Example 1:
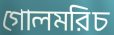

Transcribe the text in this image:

গোলমরিচ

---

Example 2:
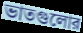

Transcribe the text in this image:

ভাতগুলোর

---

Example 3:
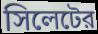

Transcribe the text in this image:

সিলেটের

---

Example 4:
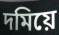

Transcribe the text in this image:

দমিয়ে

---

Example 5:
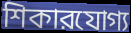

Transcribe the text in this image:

শিকারযোগ্য